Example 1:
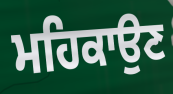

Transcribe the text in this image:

ਮਹਿਕਾਉਣ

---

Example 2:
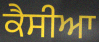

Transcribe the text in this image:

ਕੈਸੀਆ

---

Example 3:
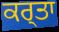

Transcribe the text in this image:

ਕਰ੍ਤਾ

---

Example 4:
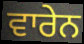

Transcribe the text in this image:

ਵਾਰੇਨ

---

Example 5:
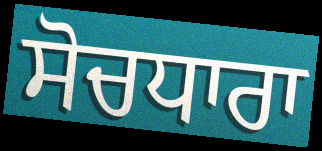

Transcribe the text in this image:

ਸੋਚਧਾਰਾ